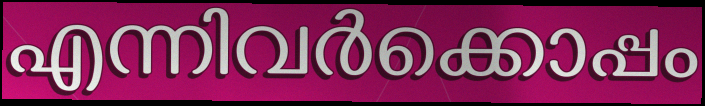
എന്നിവർക്കൊപ്പം